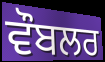
ਵੌਬਲਰ